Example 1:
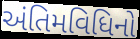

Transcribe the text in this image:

અંતિમવિધિનો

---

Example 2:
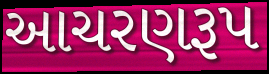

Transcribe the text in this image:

આચરણરૂપ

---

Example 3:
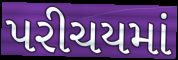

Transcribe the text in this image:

પરીચયમાં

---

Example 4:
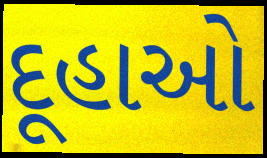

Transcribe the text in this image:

દૂહાઓ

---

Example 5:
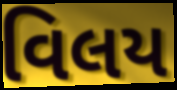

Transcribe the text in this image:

વિલય